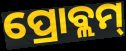
ପ୍ରୋବ୍ଲମ୍